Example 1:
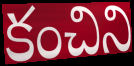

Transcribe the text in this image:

కంచిని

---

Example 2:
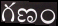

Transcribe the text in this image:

గణం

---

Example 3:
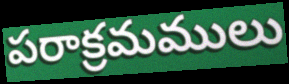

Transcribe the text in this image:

పరాక్రమములు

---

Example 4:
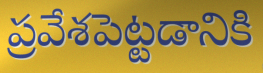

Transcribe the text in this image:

ప్రవేశపెట్టడానికి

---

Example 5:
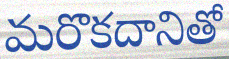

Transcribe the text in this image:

మరొకదానితో